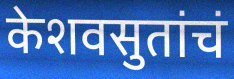
केशवसुतांचं